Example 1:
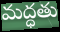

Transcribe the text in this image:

మద్ధతు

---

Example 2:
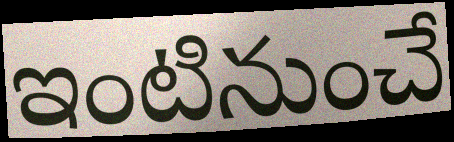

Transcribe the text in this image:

ఇంటినుంచే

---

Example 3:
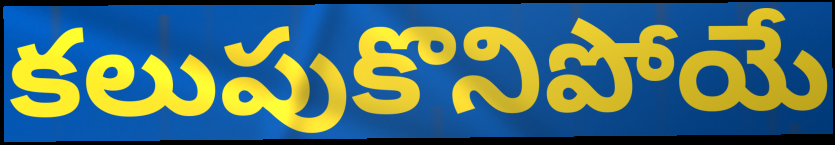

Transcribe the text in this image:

కలుపుకొనిపోయే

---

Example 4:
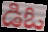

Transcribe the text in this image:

డిఓ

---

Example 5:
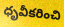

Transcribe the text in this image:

ధృవీకరించి